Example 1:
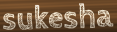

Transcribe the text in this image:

sukesha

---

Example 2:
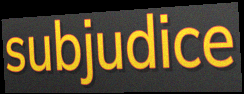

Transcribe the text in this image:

subjudice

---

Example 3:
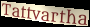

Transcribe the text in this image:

Tattvartha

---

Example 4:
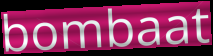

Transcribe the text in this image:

bombaat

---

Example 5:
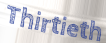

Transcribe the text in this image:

Thirtieth